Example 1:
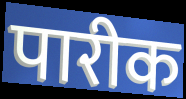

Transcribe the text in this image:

पारीक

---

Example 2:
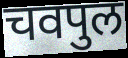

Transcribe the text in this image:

चवपुल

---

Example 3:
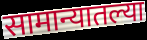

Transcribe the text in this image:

सामान्यातल्या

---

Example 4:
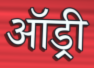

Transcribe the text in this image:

ऑड्री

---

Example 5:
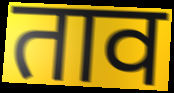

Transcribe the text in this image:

ताव